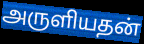
அருளியதன்